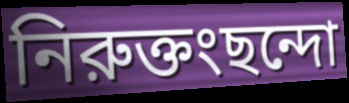
নিরুক্তংছন্দো